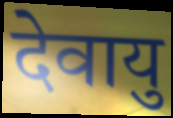
देवायु